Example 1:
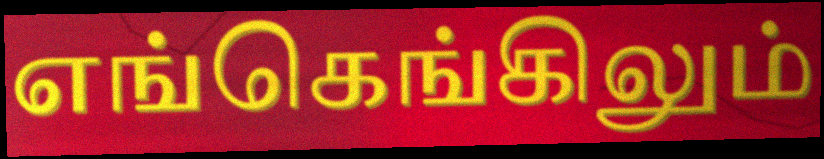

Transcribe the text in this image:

எங்கெங்கிலும்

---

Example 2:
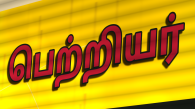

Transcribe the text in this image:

பெற்றியர்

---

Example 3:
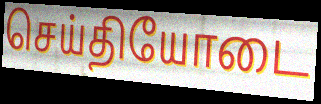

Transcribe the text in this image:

செய்தியோடை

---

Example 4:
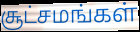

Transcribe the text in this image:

சூட்சமங்கள்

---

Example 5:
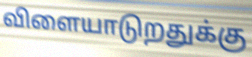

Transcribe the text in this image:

விளையாடுறதுக்கு